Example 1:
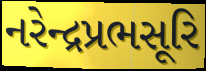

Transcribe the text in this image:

નરેન્દ્રપ્રભસૂરિ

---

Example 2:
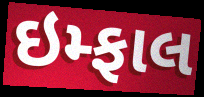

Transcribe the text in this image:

ઇમ્ફાલ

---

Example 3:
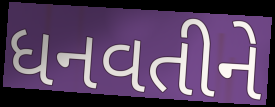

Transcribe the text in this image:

ધનવતીને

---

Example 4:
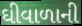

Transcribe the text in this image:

ઘીવાળાની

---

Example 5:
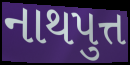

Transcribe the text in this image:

નાથપુત્ત